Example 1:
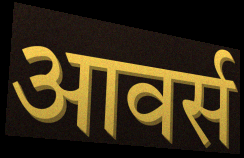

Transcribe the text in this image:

आवर्स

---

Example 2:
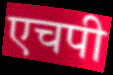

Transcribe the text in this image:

एचपी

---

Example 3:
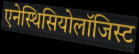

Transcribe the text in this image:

एनेस्थिसियोलॉजिस्ट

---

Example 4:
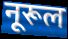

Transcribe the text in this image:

नूरूल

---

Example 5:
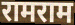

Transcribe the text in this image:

रामराम